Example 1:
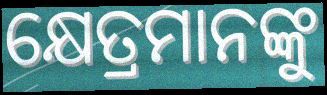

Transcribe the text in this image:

କ୍ଷେତ୍ରମାନଙ୍କୁ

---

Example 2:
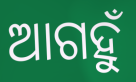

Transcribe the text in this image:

ଆଗହୁଁ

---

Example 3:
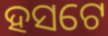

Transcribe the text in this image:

ହସଟେ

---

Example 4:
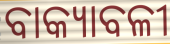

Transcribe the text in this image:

ବାକ୍ୟାବଳୀ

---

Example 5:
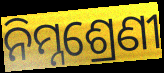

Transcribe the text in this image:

ନିମ୍ନଶ୍ରେଣୀ